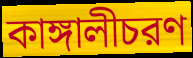
কাঙ্গালীচরণ